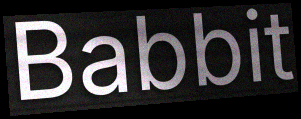
Babbit